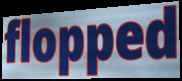
flopped